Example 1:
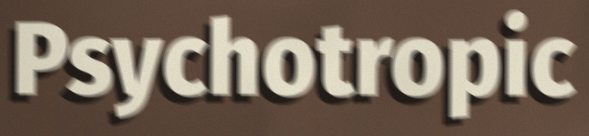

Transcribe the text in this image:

Psychotropic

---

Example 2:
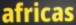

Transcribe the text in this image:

africas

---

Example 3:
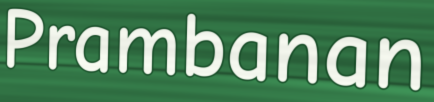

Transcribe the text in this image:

Prambanan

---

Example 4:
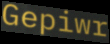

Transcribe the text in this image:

Gepiwr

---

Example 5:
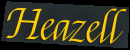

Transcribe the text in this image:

Heazell